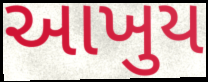
આખુય